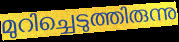
മുറിച്ചെടുത്തിരുന്നു